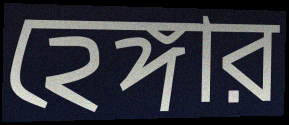
হেঙ্গার